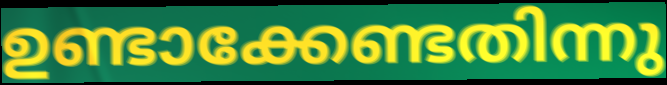
ഉണ്ടാക്കേണ്ടതിന്നു